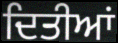
ਦਿਤੀਆਂ